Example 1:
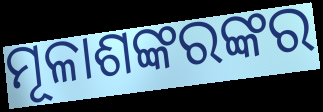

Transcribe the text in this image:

ମୂଳାଶଙ୍କରଙ୍କର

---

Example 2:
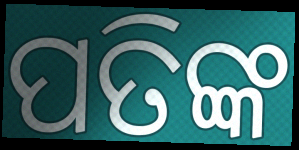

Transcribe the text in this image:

ପତିଙ୍କ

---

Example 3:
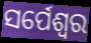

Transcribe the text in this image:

ସର୍ପେଶ୍ୱର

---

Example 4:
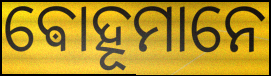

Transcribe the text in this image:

ଵୋହୂମାନେ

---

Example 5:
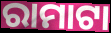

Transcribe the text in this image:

ରାମାଟା